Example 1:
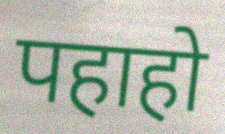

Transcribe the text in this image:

पहाहो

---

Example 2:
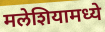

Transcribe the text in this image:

मलेशियामध्ये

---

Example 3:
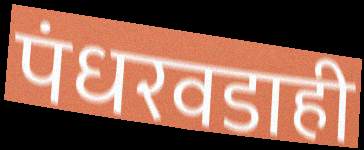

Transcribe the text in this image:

पंधरवडाही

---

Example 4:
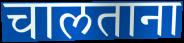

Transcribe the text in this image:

चालताना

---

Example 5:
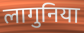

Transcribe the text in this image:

लागुनिया